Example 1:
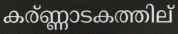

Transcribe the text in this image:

കര്ണ്ണാടകത്തില്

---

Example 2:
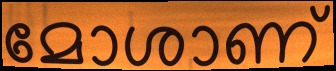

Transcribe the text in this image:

മോശാണ്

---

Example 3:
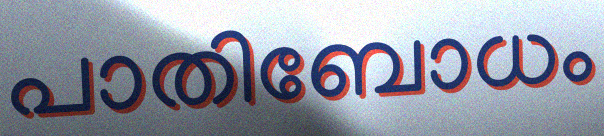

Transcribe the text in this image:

പാതിബോധം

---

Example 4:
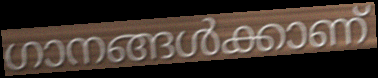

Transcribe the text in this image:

ഗാനങ്ങൾക്കാണ്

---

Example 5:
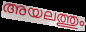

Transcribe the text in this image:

അയലത്തും